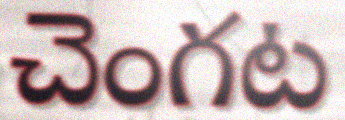
చెంగట